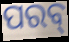
ପରବ୍